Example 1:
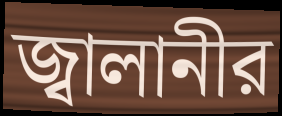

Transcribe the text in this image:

জ্বালানীর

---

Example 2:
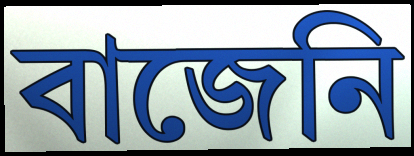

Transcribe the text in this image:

বাজেনি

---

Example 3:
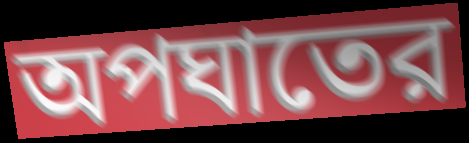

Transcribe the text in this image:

অপঘাতের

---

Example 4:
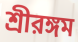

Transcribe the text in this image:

শ্রীরঙ্গম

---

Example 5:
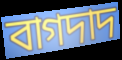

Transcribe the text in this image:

বাগদাদ